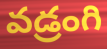
వడ్రంగి